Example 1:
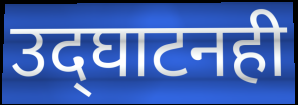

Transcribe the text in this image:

उद्घाटनही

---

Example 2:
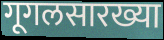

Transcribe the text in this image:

गूगलसारख्या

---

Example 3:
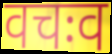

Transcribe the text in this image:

वचःव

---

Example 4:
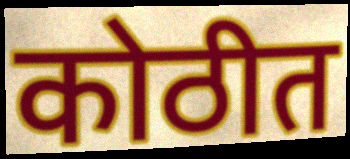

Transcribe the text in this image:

कोठीत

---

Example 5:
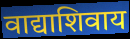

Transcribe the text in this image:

वाद्याशिवाय